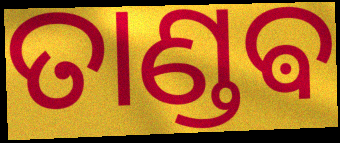
ତାଣ୍ଡଵ